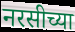
नरसीच्या